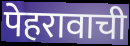
पेहरावाची